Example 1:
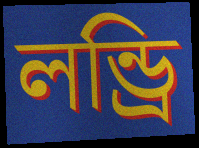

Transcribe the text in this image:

লন্ড্রি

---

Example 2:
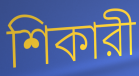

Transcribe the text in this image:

শিকারী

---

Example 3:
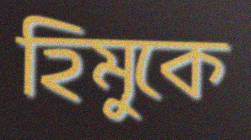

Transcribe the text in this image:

হিমুকে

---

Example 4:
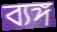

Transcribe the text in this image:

ব্যঙ্গ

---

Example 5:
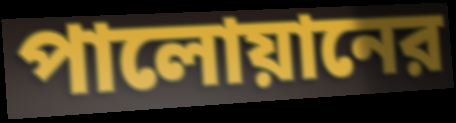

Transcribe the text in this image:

পালোয়ানের